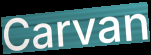
Carvan